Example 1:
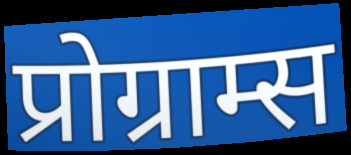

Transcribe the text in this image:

प्रोग्राम्स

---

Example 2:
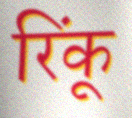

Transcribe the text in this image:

रिंकू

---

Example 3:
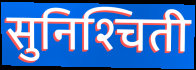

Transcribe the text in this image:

सुनिश्चिती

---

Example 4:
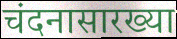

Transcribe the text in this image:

चंदनासारख्या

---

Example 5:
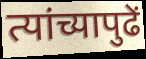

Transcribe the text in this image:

त्यांच्यापुढें